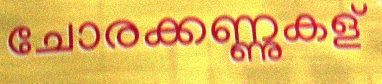
ചോരക്കണ്ണുകള്